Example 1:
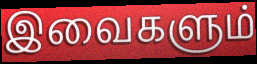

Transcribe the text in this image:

இவைகளும்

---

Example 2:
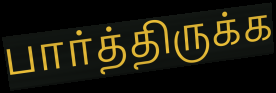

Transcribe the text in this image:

பார்த்திருக்க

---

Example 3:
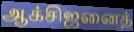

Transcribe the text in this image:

ஆக்சிஜனைத்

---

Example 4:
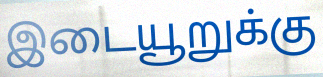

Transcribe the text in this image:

இடையூறுக்கு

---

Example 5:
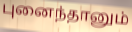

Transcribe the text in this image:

புனைந்தானும்